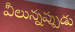
వీలున్నప్పుడు